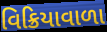
વિક્રિયાવાળા